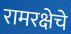
रामरक्षेचे